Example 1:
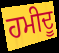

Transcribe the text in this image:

ਹਮੀਦੂ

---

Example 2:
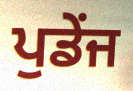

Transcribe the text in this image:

ਪੁਡੇਂਜ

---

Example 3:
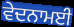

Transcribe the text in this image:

ਵੇਦਨਾਮਈ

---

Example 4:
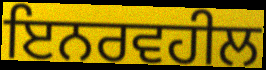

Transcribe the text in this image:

ਇਨਰਵਹੀਲ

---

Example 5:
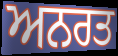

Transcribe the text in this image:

ਅਨਰਤ